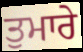
ਤੁਮਾਰੇ